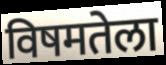
विषमतेला